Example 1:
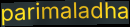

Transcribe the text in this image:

parimaladha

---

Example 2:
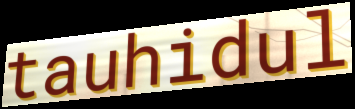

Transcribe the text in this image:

tauhidul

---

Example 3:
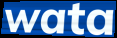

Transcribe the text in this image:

wata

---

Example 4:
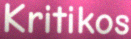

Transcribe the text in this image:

Kritikos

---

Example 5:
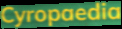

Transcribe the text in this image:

Cyropaedia